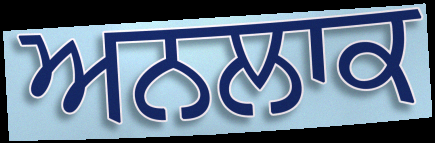
ਅਨਲਾਕ